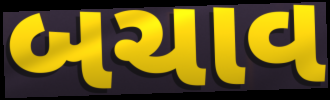
બચાવ